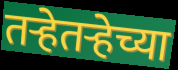
तर्‍हेतर्‍हेच्या